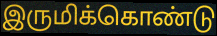
இருமிக்கொண்டு